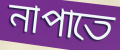
নাপাতে